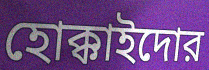
হোক্কাইদোর